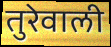
तुरेवाली